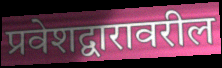
प्रवेशद्वारावरील